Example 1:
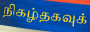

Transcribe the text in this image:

நிகழ்தகவுக்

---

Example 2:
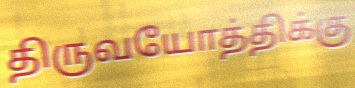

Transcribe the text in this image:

திருவயோத்திக்கு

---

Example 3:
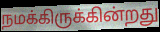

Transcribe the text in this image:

நமக்கிருக்கின்றது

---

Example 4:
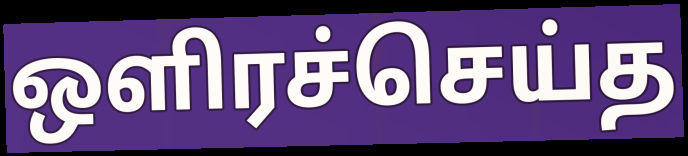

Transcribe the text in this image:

ஒளிரச்செய்த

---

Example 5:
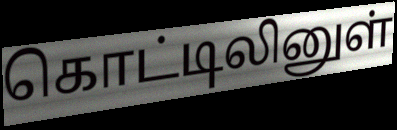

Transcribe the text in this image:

கொட்டிலினுள்